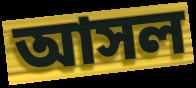
আসল